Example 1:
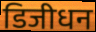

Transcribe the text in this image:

डिजीधन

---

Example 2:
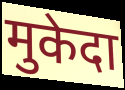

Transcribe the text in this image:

मुकेदा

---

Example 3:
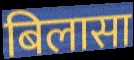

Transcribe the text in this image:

बिलासा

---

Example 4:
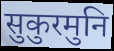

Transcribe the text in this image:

सुकुरमुनि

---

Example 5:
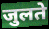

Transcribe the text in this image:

जुलते